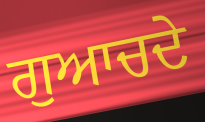
ਗੁਆਚਦੇ